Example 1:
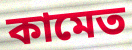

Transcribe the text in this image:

কামেত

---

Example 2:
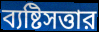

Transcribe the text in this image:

ব্যষ্টিসত্তার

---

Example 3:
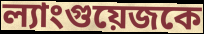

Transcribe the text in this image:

ল্যাংগুয়েজকে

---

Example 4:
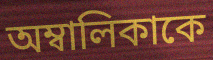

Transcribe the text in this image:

অম্বালিকাকে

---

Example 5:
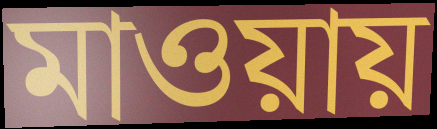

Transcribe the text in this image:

মাওয়ায়